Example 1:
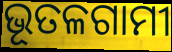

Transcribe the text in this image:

ଭୂତଳଗାମୀ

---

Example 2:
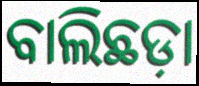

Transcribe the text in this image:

ବାଲିଛଡ଼ା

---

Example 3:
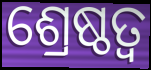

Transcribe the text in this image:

ଶ୍ରେଷ୍ଠତ୍ବ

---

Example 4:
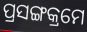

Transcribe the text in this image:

ପ୍ରସଙ୍ଗକ୍ରମେ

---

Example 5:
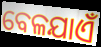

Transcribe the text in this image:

ବେଳଯାଏଁ